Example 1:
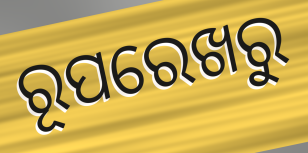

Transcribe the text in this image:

ରୂପରେଖରୁ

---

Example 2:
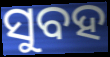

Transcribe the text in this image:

ସୁବହ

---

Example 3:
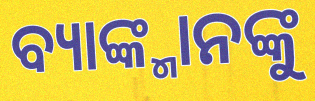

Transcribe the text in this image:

ବ୍ୟାଙ୍କ୍ମାନଙ୍କୁ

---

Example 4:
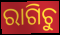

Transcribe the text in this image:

ରାଗିଚୁ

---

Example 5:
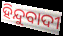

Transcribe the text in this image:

ହିନ୍ଦୁବାଦୀ